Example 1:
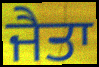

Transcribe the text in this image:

ਜੈਤਾ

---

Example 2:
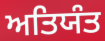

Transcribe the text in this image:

ਅਤਿਯੰਤ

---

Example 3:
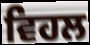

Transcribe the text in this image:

ਵਿਹਲ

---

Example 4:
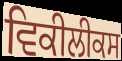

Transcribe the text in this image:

ਵਿਕੀਲੀਕਸ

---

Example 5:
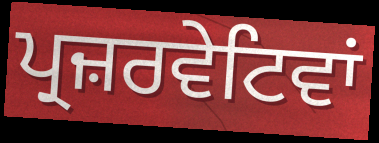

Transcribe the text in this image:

ਪ੍ਰਜ਼ਰਵੇਟਿਵਾਂ